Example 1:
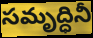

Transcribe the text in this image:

సమృద్ధినీ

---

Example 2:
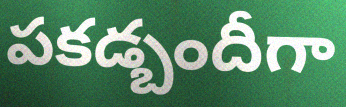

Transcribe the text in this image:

పకడ్బందీగా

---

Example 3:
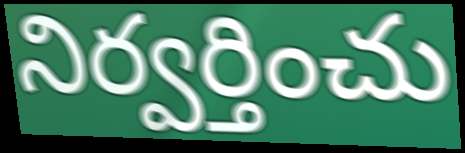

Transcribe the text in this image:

నిర్వర్తించు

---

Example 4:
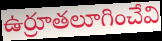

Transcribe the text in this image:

ఉర్రూతలూగించేవి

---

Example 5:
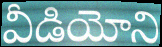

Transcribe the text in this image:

వీడియోని